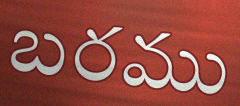
బరము